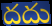
దదు